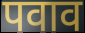
पवाव